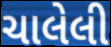
ચાલેલી